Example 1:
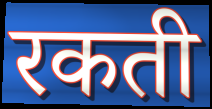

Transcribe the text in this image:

रकती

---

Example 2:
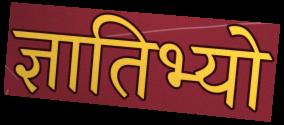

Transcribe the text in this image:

ज्ञातिभ्यो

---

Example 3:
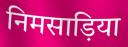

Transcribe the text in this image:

निमसाड़िया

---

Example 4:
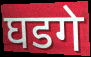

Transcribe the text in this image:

घडगे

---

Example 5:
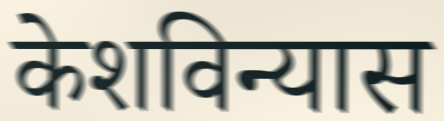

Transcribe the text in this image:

केशविन्यास